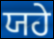
ਯਹੇ